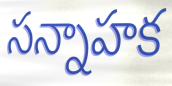
సన్నాహక